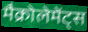
मैक्रोलेमेंट्स